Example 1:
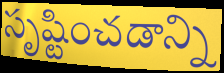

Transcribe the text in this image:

సృష్టించడాన్ని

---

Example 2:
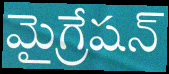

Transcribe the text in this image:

మైగ్రేషన్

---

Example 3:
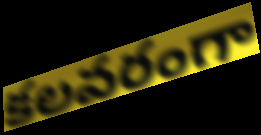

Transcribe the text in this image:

కలవరంగా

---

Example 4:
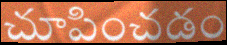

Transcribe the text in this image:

చూపించడం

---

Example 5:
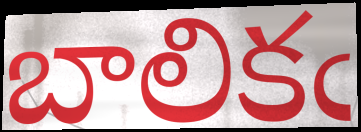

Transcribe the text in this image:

బాలికఁ